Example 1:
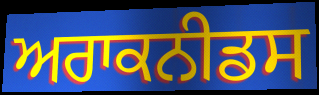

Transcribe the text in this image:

ਅਰਾਕਨੀਡਸ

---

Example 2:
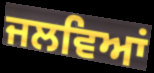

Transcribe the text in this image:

ਜਲਵਿਆਂ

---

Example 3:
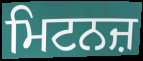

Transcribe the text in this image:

ਮਿਟਨਜ਼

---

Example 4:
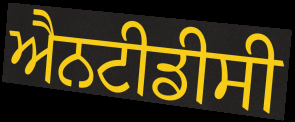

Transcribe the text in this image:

ਐਨਟੀਡੀਸੀ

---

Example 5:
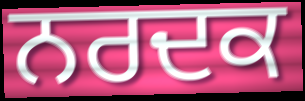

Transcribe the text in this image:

ਨਰਦਕ